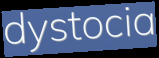
dystocia